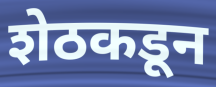
शेठकडून